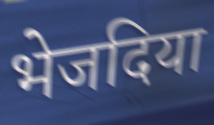
भेजदिया